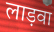
लाड़वा